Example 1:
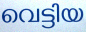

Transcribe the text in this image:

വെട്ടിയ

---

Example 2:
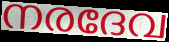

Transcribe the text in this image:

നരദേവ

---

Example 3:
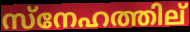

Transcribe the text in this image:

സ്നേഹത്തില്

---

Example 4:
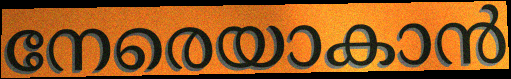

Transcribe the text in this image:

നേരെയാകാൻ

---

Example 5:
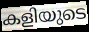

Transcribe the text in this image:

കളിയുടെ